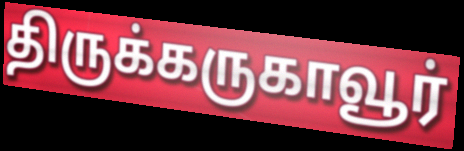
திருக்கருகாவூர்